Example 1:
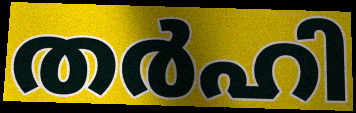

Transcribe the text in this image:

തർഹി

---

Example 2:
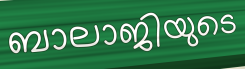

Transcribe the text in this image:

ബാലാജിയുടെ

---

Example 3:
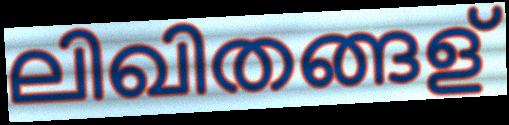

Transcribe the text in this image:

ലിഖിതങ്ങള്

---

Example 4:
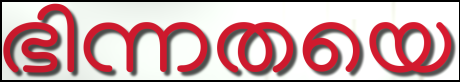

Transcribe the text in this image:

ഭിന്നതയെ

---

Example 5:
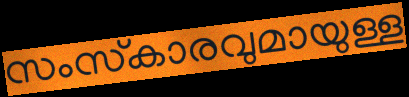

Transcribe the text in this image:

സംസ്‌കാരവുമായുള്ള